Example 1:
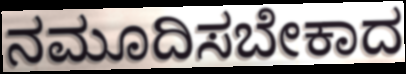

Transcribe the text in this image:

ನಮೂದಿಸಬೇಕಾದ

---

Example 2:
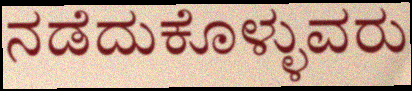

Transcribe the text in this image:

ನಡೆದುಕೊಳ್ಳುವರು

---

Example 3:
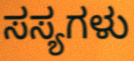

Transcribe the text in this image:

ಸಸ್ಯಗಳು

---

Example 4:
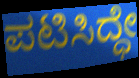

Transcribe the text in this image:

ಪಟಿಸಿದ್ಧೇ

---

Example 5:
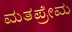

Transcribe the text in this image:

ಮತಪ್ರೇಮ